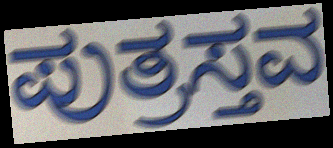
ಪುತ್ರಸ್ತವ